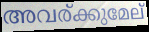
അവര്ക്കുമേല്